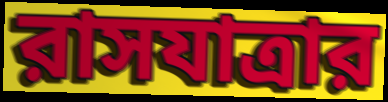
রাসযাত্রার